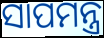
ସାପମନ୍ତ୍ର